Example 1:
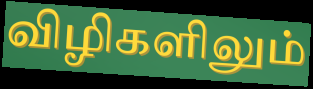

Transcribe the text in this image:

விழிகளிலும்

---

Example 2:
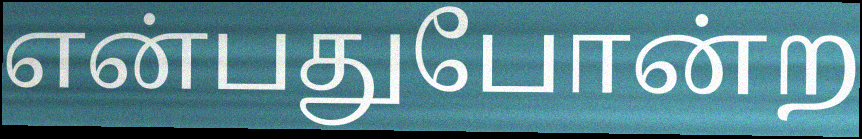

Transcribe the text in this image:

என்பதுபோன்ற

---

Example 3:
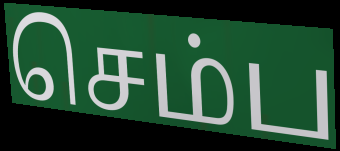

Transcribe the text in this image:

செம்ப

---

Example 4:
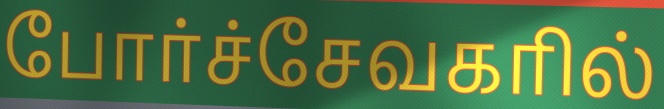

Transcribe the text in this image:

போர்ச்சேவகரில்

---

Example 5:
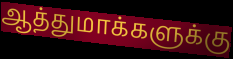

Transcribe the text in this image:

ஆத்துமாக்களுக்கு